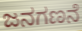
ಜನಗಣನೆ